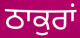
ਠਾਕੁਰਾਂ